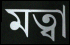
মত্বা